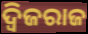
ଦ୍ୱିଜରାଜ